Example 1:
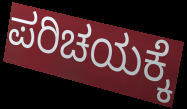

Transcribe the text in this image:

ಪರಿಚಯಕ್ಕೆ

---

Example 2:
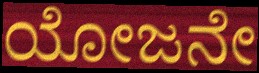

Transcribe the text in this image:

ಯೋಜನೇ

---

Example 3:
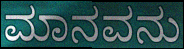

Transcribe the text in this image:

ಮಾನವನು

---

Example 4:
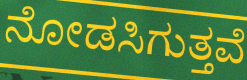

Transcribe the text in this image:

ನೋಡಸಿಗುತ್ತವೆ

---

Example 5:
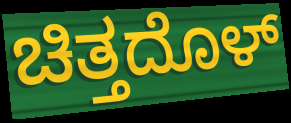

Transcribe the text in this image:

ಚಿತ್ತದೊಳ್